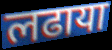
लढाया